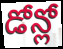
డోన్లో